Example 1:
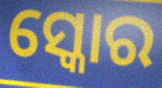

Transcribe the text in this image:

ସ୍କୋର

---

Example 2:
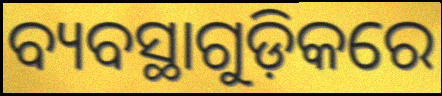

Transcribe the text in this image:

ବ୍ୟବସ୍ଥାଗୁଡ଼ିକରେ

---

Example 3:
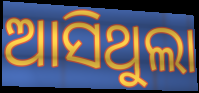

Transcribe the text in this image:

ଆସିଥୁଲା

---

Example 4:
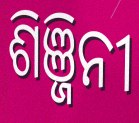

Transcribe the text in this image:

ଶିଞ୍ଜିନୀ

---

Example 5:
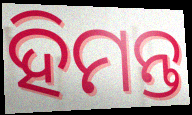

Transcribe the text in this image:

ହିମନ୍ତ